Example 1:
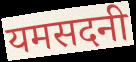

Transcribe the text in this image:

यमसदनी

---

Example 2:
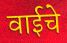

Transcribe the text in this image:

वाईचे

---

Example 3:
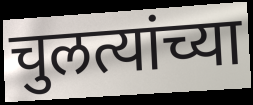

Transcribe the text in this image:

चुलत्यांच्या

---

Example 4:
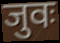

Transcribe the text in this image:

जुवः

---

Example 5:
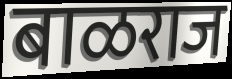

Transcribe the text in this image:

बाळराज